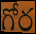
గోర